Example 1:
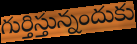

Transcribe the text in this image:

గుర్తిస్తున్నందుకు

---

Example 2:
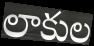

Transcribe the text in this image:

లాకుల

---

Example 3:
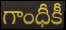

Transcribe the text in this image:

గాంధీకీ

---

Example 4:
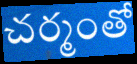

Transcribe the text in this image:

చర్మంతో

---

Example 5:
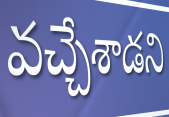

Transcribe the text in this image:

వచ్చేశాడని